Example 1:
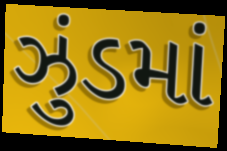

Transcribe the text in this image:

ઝુંડમાં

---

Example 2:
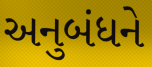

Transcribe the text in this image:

અનુબંધને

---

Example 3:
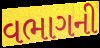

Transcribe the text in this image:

વભાગની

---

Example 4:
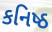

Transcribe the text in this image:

કનિષ્ઠ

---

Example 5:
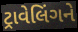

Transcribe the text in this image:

ટ્રાવેલિંગને